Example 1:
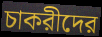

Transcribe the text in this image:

চাকরীদের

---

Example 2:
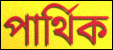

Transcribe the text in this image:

পার্থিক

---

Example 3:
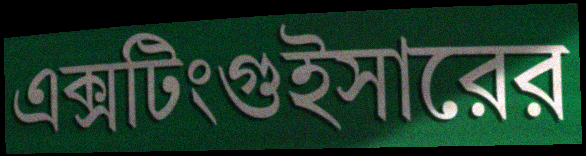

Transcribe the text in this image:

এক্সটিংগুইসারের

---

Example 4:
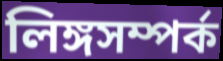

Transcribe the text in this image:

লিঙ্গসম্পর্ক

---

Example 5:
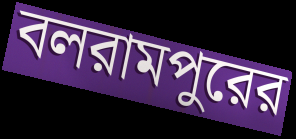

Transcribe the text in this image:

বলরামপুরের